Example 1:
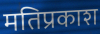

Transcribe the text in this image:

मतिप्रकाश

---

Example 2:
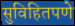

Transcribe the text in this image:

सुविहितपणे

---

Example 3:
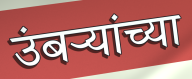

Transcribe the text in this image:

उंबऱ्यांच्या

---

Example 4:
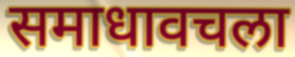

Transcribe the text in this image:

समाधावचला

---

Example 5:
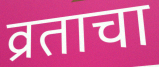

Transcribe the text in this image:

व्रताचा